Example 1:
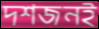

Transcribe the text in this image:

দশজনই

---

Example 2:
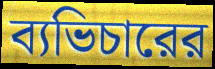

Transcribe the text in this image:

ব্যভিচারের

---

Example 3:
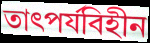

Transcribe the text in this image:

তাৎপর্যবিহীন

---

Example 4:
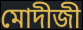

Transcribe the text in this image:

মোদীজী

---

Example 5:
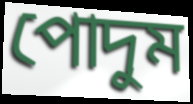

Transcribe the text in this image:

পোদুম